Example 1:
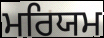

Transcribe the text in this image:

ਮਰਿਯਮ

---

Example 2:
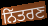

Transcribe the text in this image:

ਨਿੱਤਰਣ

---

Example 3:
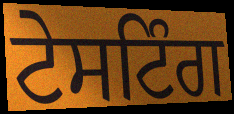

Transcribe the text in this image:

ਟੇਸਟਿੰਗ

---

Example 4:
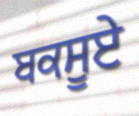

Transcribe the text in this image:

ਬਕਸੂਏ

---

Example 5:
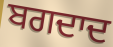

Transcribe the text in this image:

ਬਗਦਾਦ